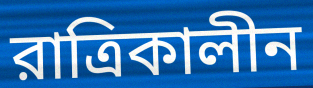
রাত্রিকালীন